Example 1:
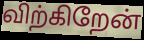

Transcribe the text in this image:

விற்கிறேன்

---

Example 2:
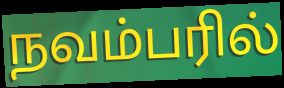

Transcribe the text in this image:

நவம்பரில்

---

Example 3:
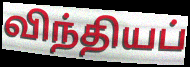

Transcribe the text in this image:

விந்தியப்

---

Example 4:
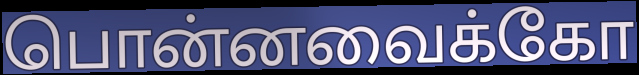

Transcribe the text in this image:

பொன்னவைக்கோ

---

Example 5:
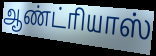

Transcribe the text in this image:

ஆண்ட்ரியாஸ்